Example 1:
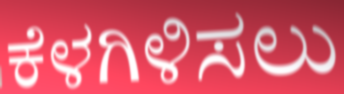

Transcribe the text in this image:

ಕೆಳಗಿಳಿಸಲು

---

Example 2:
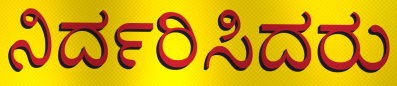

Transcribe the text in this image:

ನಿರ್ದರಿಸಿದರು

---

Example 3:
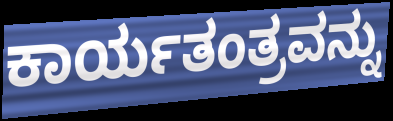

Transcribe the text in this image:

ಕಾರ್ಯತಂತ್ರವನ್ನು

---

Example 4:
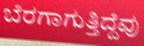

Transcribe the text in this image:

ಬೆರಗಾಗುತ್ತಿದ್ದೆವು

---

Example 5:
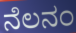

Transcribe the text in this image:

ನೆಲನಂ